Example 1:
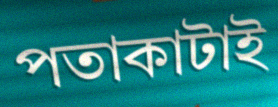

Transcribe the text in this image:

পতাকাটাই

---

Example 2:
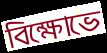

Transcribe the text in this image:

বিক্ষোভে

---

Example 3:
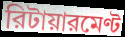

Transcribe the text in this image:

রিটায়ারমেণ্ট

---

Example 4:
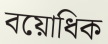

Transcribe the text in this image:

বয়োধিক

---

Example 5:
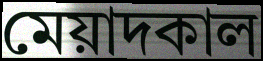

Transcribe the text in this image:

মেয়াদকাল